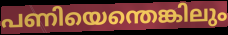
പണിയെന്തെങ്കിലും